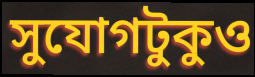
সুযোগটুকুও